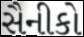
સૈનીકો